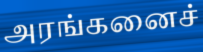
அரங்கனைச்